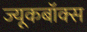
ज्यूकबॉक्स